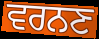
ਵਰਨਣ